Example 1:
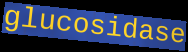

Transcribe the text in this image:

glucosidase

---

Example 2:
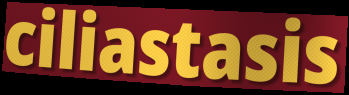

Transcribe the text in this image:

ciliastasis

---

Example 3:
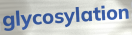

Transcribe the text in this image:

glycosylation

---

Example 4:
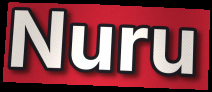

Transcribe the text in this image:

Nuru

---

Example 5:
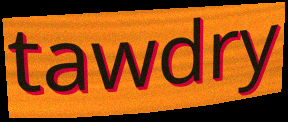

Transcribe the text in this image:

tawdry